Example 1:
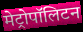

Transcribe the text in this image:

मेट्रोपॉलिटन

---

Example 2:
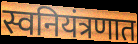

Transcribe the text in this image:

स्वनियंत्रणात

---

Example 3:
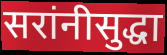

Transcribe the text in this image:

सरांनीसुद्धा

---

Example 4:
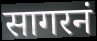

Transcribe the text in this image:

सागरनं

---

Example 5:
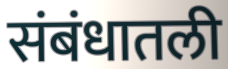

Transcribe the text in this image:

संबंधातली